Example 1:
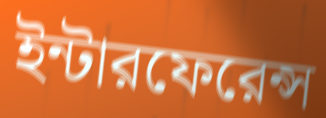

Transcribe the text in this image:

ইন্টারফেরেন্স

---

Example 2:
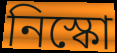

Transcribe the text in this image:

নিস্কো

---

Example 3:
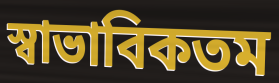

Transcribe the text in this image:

স্বাভাবিকতম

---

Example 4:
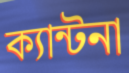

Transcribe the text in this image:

ক্যান্টনা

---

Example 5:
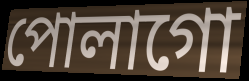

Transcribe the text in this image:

পোলাগো